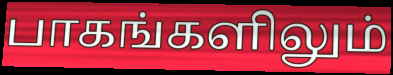
பாகங்களிலும்